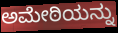
ಅಮೇಠಿಯನ್ನು